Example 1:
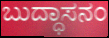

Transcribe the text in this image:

ಬುದ್ಧಾಸನಂ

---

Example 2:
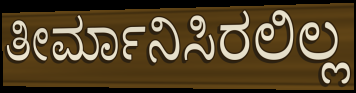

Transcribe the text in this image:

ತೀರ್ಮಾನಿಸಿರಲಿಲ್ಲ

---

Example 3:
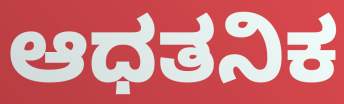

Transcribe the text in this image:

ಆಧತನಿಕ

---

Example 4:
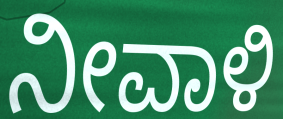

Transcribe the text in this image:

ನೀವಾಳಿ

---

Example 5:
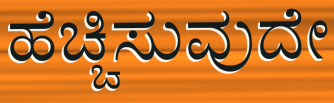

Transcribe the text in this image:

ಹೆಚ್ಚಿಸುವುದೇ